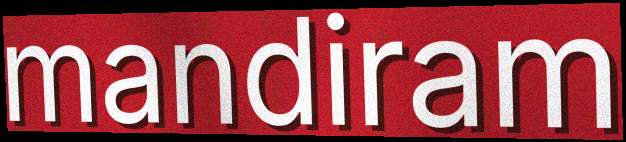
mandiram